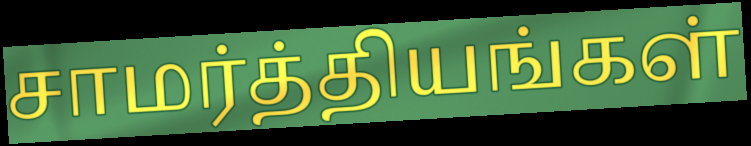
சாமர்த்தியங்கள்